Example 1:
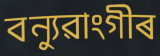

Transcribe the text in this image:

বন্যুৱাংগীৰ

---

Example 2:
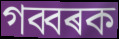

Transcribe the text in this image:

গব্বৰক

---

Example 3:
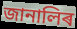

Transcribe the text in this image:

জানালিৰ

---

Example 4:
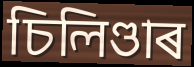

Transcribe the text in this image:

চিলিণ্ডাৰ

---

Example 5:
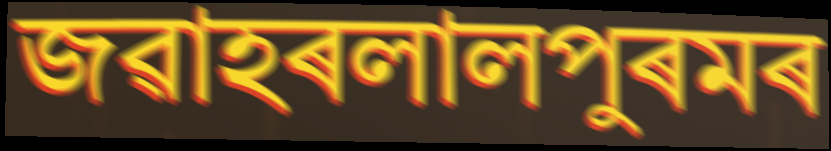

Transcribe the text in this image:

জৱাহৰলালপুৰমৰ